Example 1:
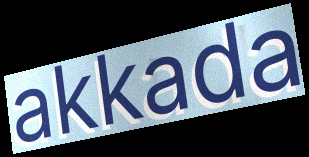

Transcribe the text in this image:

akkada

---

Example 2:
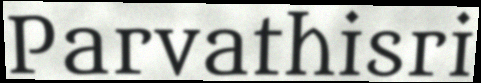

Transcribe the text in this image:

Parvathisri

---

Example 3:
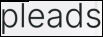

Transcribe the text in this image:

pleads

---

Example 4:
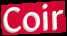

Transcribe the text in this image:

Coir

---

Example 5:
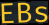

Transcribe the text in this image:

EBs